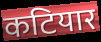
कटियार